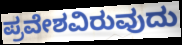
ಪ್ರವೇಶವಿರುವುದು